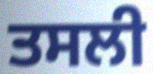
ਤਸਲੀ